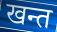
खन्त